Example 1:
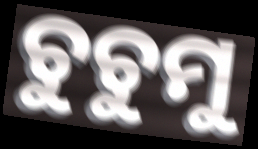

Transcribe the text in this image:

ଚୁଚୁମୁ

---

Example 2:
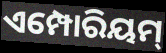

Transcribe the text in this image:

ଏମ୍ପୋରିୟମ୍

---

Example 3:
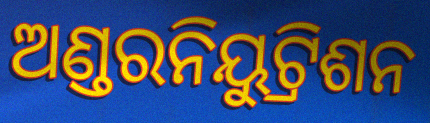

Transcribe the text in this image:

ଅଣ୍ଡରନିୟୁଟ୍ରିଶନ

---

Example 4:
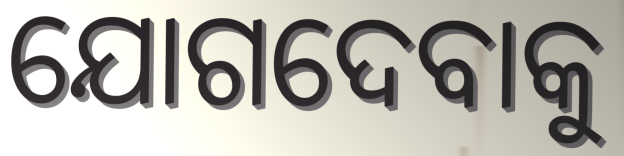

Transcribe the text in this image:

ଯୋଗଦେବାକୁ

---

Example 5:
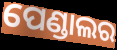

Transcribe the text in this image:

ପେଣ୍ଡାଲର